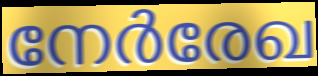
നേർരേഖ